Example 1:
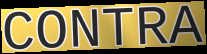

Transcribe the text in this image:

CONTRA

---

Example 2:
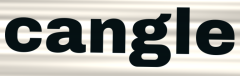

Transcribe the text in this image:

cangle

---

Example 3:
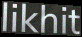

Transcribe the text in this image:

likhit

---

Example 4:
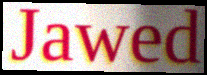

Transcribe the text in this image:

Jawed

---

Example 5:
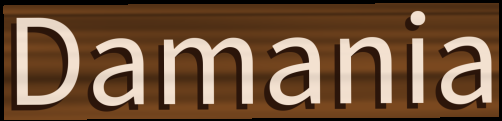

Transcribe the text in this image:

Damania